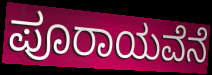
ಪೂರಾಯವೆನೆ